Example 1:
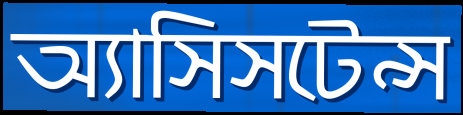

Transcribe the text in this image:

অ্যাসিসটেন্স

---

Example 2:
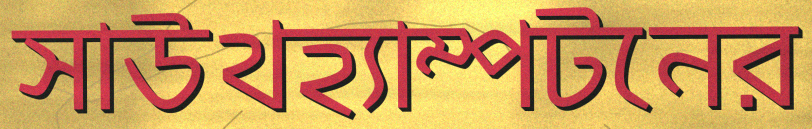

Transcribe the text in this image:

সাউথহ্যাম্পটনের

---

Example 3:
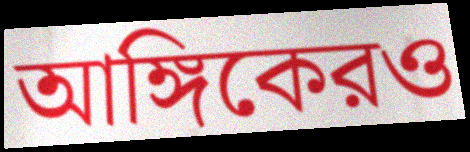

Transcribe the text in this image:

আঙ্গিকেরও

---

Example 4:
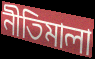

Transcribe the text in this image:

নীতিমালা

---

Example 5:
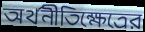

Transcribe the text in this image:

অর্থনীতিক্ষেত্রের